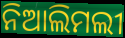
ନିଆଲିମଲୀ